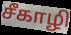
சீகாழி